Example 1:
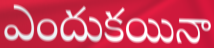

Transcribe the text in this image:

ఎందుకయినా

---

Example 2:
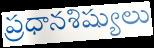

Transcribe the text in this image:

ప్రధానశిష్యులు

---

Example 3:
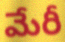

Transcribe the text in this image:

మేరీ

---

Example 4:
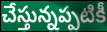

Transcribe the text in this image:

చేస్తున్నప్పటికీ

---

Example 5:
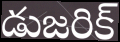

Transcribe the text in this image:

డుజరిక్